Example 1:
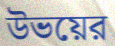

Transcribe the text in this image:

উভয়ের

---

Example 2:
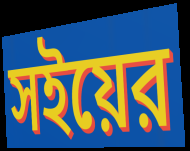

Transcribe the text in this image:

সইয়ের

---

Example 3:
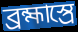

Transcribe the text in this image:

ব্রহ্মাস্ত্রে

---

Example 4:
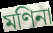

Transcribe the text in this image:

মণিনা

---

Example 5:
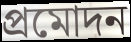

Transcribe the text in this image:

প্রমোদন